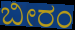
ಬೀರಂ